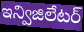
ఇన్విజిలేటర్